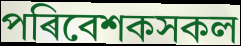
পৰিবেশকসকল